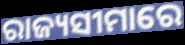
ରାଜ୍ୟସୀମାରେ